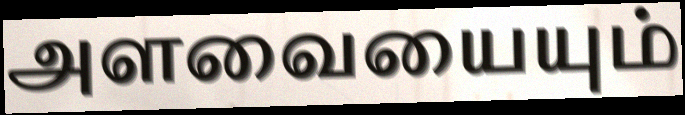
அளவையையும்